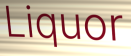
Liquor